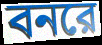
বনরে